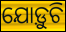
ଯୋଡ଼ୁଚି